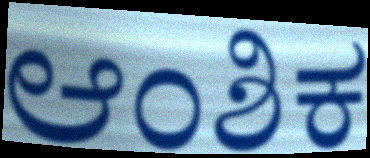
ಆಂಶಿಕ